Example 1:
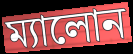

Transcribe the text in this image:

ম্যালোন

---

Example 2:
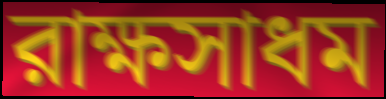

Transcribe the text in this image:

রাক্ষসাধম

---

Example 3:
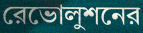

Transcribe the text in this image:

রেভোলুশনের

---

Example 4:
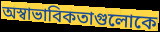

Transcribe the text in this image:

অস্বাভাবিকতাগুলোকে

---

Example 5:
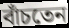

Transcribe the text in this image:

বাঁচতেন